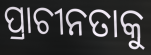
ପ୍ରାଚୀନତାକୁ